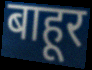
बाहूर